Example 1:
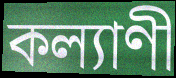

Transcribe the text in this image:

কল্যাণী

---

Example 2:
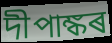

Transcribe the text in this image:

দীপাঙ্কৰ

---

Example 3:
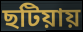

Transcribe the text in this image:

ছটিয়ায়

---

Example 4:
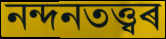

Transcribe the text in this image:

নন্দনতত্ত্বৰ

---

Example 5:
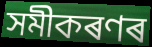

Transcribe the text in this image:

সমীকৰণৰ